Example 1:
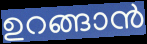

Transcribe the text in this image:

ഉറങ്ങാൻ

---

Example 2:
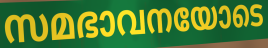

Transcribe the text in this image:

സമഭാവനയോടെ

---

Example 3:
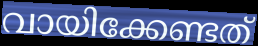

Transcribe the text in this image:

വായിക്കേണ്ടത്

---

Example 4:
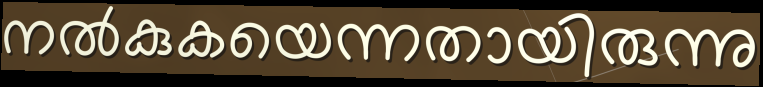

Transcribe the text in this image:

നൽകുകയെന്നതായിരുന്നു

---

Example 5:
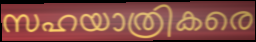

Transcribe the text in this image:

സഹയാത്രികരെ